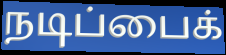
நடிப்பைக்